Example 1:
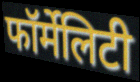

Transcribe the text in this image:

फॉर्मेलिटी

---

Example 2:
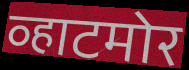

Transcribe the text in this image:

व्हाटमोर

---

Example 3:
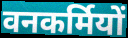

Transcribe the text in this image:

वनकर्मियों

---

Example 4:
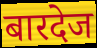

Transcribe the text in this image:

बारदेज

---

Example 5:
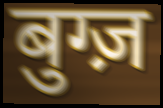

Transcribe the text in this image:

बुग्ज़